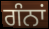
ਗੰਨਾਂ